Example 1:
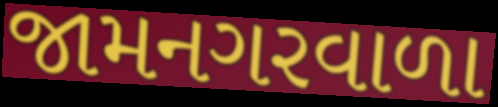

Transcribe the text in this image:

જામનગરવાળા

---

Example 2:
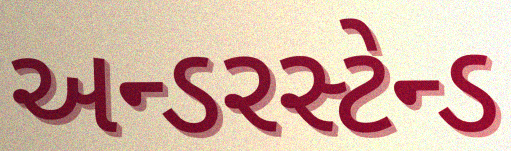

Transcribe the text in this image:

અન્ડરસ્ટેન્ડ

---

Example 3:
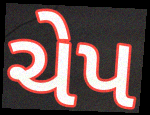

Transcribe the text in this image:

ચેપ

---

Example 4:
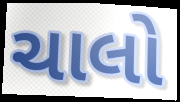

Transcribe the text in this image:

ચાલો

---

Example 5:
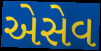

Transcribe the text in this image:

એસેવ